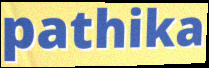
pathika